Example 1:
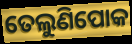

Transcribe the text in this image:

ତେଲୁଣିପୋକ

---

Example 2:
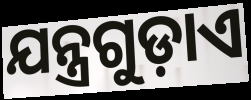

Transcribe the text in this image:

ଯନ୍ତ୍ରଗୁଡ଼ାଏ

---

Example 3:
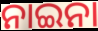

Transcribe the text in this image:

ନାଇନା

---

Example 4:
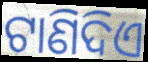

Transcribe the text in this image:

ଟାଣିଦିଏ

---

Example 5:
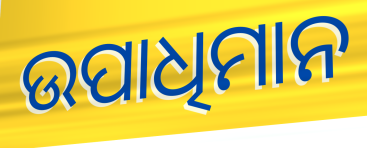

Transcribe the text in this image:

ଉପାଧିମାନ